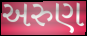
અરુણ